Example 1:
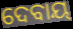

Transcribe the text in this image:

ଦେବାୟ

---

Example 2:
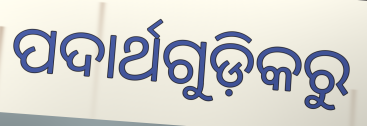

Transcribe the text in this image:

ପଦାର୍ଥଗୁଡ଼ିକରୁ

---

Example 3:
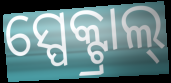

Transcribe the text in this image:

ସ୍ପେକ୍ଟ୍ରାଲ୍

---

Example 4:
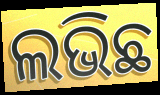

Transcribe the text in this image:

ଲଭିଛ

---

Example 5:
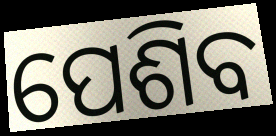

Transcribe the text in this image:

ପେଶିବ